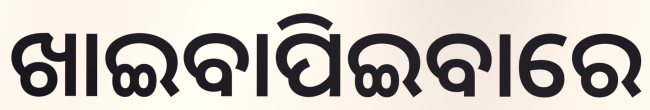
ଖାଇବାପିଇବାରେ